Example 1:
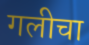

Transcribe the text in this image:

गलीचा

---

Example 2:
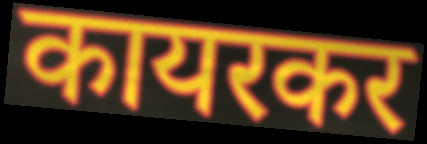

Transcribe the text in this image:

कायरकर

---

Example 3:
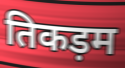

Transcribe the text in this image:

तिकड़म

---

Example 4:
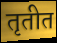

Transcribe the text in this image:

तृतीत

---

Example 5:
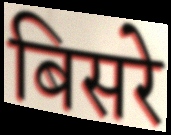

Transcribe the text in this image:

बिसरे